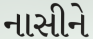
નાસીને